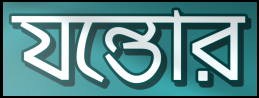
যন্তোর